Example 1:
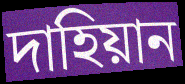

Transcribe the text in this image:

দাহিয়ান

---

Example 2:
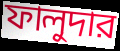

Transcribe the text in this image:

ফালুদার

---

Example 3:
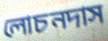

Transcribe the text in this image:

লোচনদাস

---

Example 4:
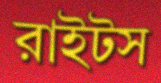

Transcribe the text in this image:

রাইটস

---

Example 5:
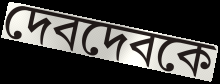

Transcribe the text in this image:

দেবদেবকে